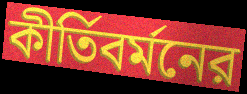
কীর্তিবর্মনের